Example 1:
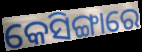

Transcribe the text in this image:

କେସିଙ୍ଗାରେ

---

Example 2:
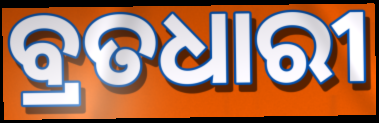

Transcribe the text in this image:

ବ୍ରତଧାରୀ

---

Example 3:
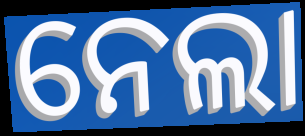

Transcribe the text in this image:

ନେଲା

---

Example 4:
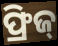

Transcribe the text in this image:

ଫ୍ରିଜ୍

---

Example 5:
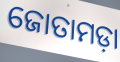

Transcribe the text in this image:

ଜୋତାମଡ଼ା